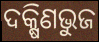
ଦକ୍ଷିଣଭୁଜ